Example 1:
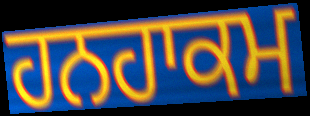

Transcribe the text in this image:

ਹਨਹਾਕਮ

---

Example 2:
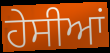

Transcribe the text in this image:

ਹੇਸੀਆਂ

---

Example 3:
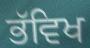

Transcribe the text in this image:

ਭੱਵਿਖ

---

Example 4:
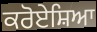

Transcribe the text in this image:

ਕਰੋਏਸ਼ਿਆ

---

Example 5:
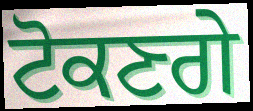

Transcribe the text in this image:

ਟੋਕਣਗੇ